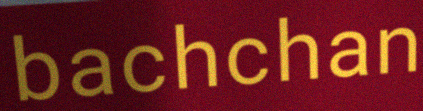
bachchan